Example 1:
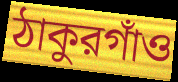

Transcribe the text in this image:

ঠাকুরগাঁও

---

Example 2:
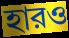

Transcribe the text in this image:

হারও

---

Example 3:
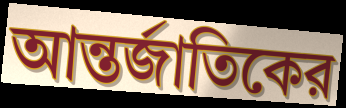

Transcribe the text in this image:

আন্তর্জাতিকের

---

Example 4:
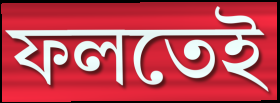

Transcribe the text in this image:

ফলতেই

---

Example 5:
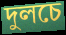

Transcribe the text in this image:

দুলচে